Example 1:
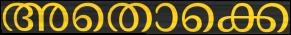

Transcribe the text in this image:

അതൊക്കെ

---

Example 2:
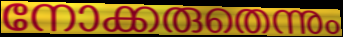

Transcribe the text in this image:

നോക്കരുതെന്നും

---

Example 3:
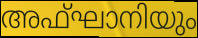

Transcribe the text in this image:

അഫ്ഘാനിയും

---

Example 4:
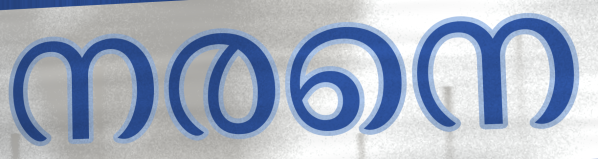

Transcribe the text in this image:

നരനെ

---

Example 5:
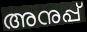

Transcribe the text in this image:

അനുപ്പ്